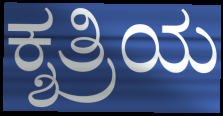
ಕ್ಶತ್ರಿಯ